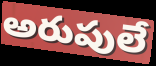
అరుపులే